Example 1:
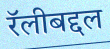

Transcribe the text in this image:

रॅलीबद्दल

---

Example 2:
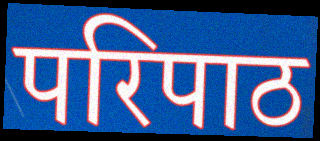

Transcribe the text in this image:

परिपाठ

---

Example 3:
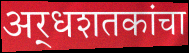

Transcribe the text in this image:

अर्धशतकांचा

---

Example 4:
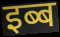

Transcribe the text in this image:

इब्ब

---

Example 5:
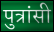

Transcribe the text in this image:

पुत्रांसी